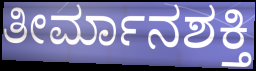
ತೀರ್ಮಾನಶಕ್ತಿ